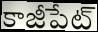
కాజీపేట్